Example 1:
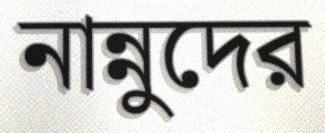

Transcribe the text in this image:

নান্নুদের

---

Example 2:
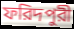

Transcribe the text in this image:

ফরিদপুরী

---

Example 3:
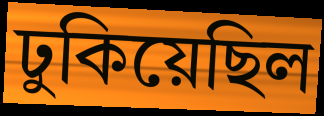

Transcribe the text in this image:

ঢুকিয়েছিল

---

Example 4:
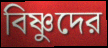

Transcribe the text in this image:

বিষ্ণুদের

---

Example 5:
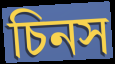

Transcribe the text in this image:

চিনস